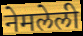
नेमलेली